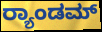
ರ್‍ಯಾಂಡಮ್